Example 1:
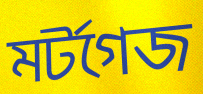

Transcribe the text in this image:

মর্টগেজ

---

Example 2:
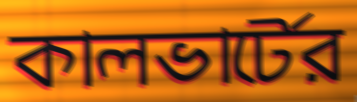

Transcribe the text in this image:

কালভার্টের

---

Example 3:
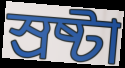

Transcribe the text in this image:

স্রষ্টা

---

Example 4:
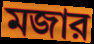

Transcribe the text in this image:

মজার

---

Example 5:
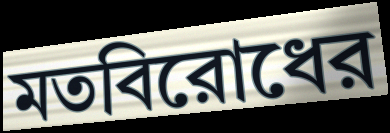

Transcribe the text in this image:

মতবিরোধের